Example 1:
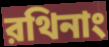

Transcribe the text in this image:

রথিনাং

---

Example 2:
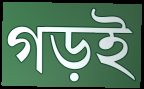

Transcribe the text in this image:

গড়ই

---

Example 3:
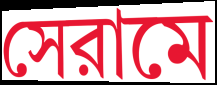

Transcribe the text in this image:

সেরামে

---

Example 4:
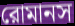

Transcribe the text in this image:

রোমানস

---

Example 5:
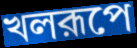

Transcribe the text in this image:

খলরূপে